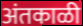
अंतकाळी